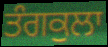
ਤੰਗਕੁਲਾ